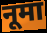
नूमा